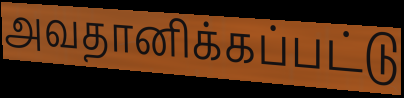
அவதானிக்கப்பட்டு